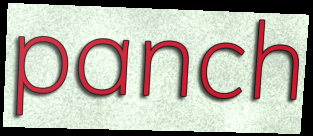
panch